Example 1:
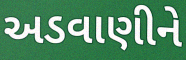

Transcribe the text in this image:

અડવાણીને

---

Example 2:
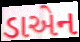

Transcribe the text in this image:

ડાએન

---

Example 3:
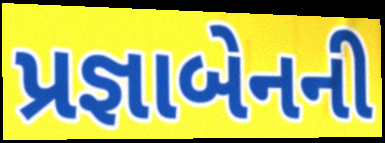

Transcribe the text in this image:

પ્રજ્ઞાબેનની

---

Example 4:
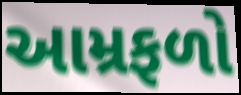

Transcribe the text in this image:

આમ્રફળો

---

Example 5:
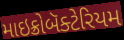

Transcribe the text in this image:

માઇક્રોબૅક્ટેરિયમ